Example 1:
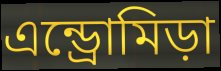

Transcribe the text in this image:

এন্ড্রোমিড়া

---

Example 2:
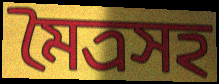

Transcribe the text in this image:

মৈত্রসহ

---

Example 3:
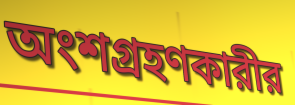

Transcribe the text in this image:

অংশগ্রহণকারীর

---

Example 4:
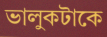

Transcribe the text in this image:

ভালুকটাকে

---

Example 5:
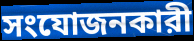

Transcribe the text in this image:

সংযোজনকারী